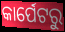
କାର୍ପେଟରୁ